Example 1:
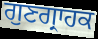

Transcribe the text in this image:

ਗੁਣਗ੍ਰਾਹਕ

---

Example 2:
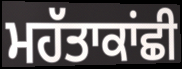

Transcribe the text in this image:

ਮਹੱਤਾਕਾਂਛੀ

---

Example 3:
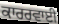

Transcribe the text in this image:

ਕਾਰਰਵਾਈ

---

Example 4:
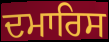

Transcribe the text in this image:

ਦਮਾਰਿਸ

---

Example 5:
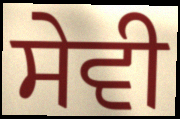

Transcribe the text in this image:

ਸੇਵੀ